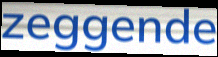
zeggende